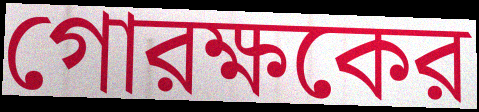
গোরক্ষকের